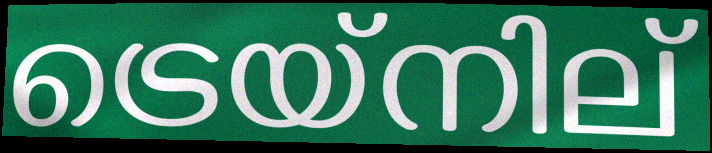
ട്രെയ്നില്